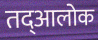
तद्आलोक